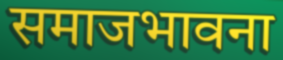
समाजभावना